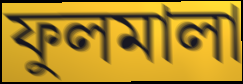
ফুলমালা